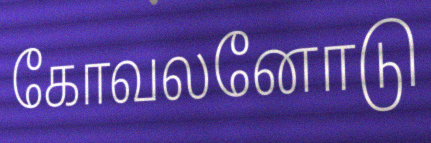
கோவலனோடு